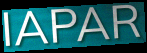
IAPAR